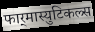
फार्मास्युटिकल्स